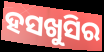
ହସଖୁସିର